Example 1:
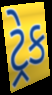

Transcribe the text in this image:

ટ્રેક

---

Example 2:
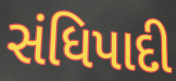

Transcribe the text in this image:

સંધિપાદી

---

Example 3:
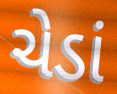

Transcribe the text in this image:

ચેડાં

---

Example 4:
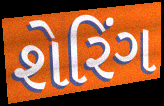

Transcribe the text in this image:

શેરિંગ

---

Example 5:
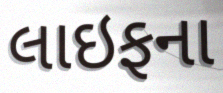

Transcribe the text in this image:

લાઇફના